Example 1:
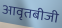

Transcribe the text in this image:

आवृतबीजी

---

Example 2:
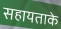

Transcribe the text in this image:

सहायताके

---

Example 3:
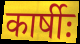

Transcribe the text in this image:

कार्षीः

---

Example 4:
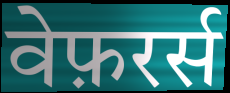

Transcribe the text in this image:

वेफ़रर्स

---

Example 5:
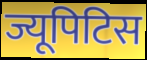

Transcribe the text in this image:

ज्यूपिटिस